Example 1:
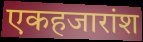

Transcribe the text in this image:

एकहजारांश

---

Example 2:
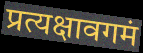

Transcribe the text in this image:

प्रत्यक्षावगमं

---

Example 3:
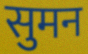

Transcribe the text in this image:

सुमन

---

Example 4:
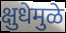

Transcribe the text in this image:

क्षुधेमुळे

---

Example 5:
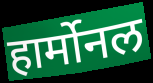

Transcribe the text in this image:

हार्मोनल